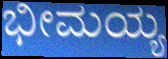
ಭೀಮಯ್ಯ